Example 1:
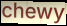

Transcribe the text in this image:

chewy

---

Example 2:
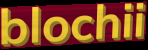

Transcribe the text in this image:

blochii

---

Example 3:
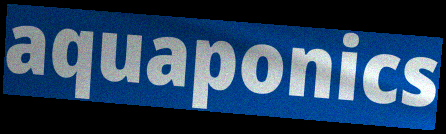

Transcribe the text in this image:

aquaponics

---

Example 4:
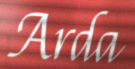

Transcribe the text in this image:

Arda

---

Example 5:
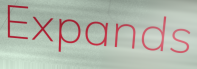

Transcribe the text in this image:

Expands